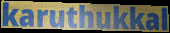
karuthukkal